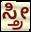
ಸ್ತ್ರೀ